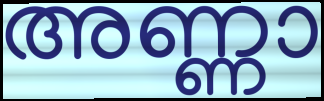
അണ്ണാ